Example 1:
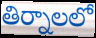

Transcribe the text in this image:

తిర్నాలలో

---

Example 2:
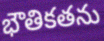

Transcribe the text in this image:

భౌతికతను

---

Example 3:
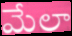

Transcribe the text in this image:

మేలా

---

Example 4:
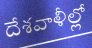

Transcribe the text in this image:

దేశవాళీల్లో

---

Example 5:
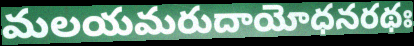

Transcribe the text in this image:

మలయమరుదాయోధనరథః